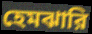
হেমঝারি